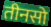
तीनसो